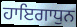
ਹਾਇਗਾਧੁਨ